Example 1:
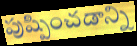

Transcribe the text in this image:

పుష్పించడాన్ని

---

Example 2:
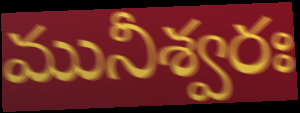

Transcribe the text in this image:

మునీశ్వరః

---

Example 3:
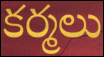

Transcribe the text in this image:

కర్మలు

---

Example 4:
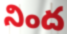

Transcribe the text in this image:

నింద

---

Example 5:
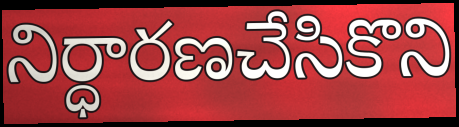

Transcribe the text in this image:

నిర్ధారణచేసికొని